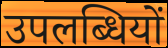
उपलब्धियों